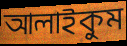
আলাইকুম